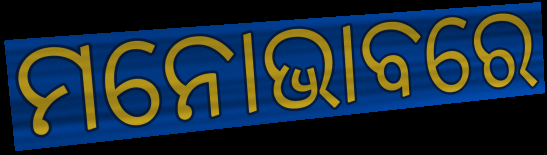
ମନୋଭାବରେ